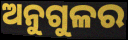
ଅନୁଗୁଳର